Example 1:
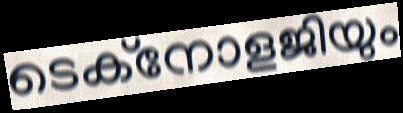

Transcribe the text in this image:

ടെക്നോളജിയും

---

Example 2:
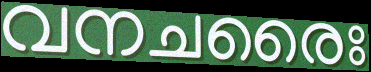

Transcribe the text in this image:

വനചരൈഃ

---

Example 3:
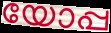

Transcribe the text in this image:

യോപ്പ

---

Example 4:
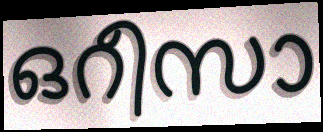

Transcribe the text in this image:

ഒറീസാ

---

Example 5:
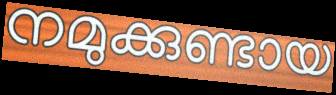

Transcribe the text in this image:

നമുക്കുണ്ടായ